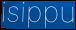
isippu